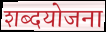
शब्दयोजना